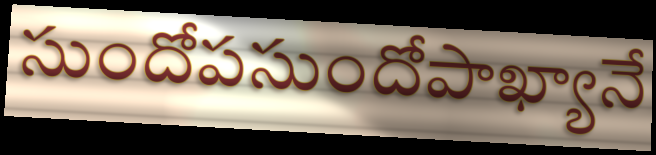
సుందోపసుందోపాఖ్యానే